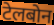
टेलबोन